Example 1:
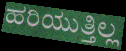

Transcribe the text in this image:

ಹರಿಯುತ್ತಿಲ್ಲ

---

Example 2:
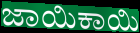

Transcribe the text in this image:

ಜಾಯಿಕಾಯಿ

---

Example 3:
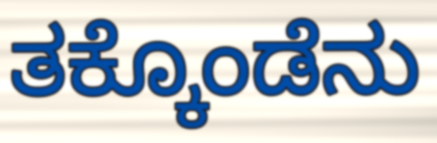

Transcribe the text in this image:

ತಕ್ಕೊಂಡೆನು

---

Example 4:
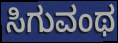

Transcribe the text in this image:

ಸಿಗುವಂಥ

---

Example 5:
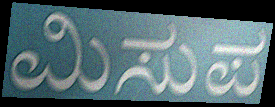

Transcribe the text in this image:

ಮಿಸುಪ